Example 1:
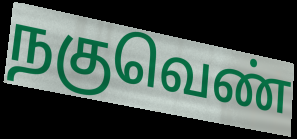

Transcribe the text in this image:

நகுவெண்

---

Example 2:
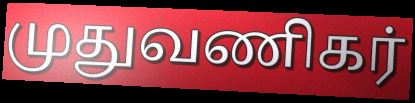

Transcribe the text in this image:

முதுவணிகர்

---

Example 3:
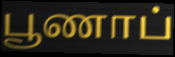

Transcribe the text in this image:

பூணாப்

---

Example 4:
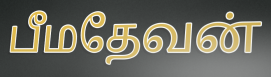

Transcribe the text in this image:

பீமதேவன்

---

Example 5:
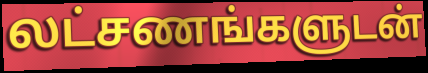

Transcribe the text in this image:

லட்சணங்களுடன்